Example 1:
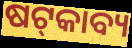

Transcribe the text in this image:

ଷଟ୍‌କାବ୍ୟ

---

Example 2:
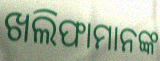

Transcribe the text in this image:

ଖଲିଫାମାନଙ୍କ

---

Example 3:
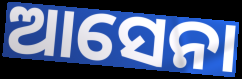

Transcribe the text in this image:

ଆସେନା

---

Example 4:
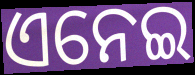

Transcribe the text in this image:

ଏନେଇ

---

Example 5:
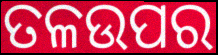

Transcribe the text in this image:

ତଳଉପର